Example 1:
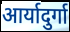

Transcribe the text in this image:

आर्यादुर्गा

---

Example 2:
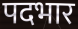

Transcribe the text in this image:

पदभार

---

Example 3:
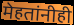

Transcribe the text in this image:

मेहतांनीही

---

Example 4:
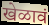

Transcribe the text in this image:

खेळावं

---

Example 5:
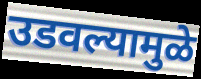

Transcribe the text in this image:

उडवल्यामुळे